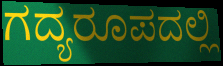
ಗದ್ಯರೂಪದಲ್ಲಿ